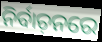
ନିର୍ବାଚ଼ନରେ